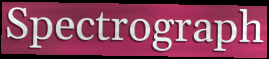
Spectrograph